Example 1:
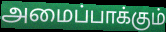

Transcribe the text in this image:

அமைப்பாக்கும்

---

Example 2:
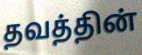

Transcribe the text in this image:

தவத்தின்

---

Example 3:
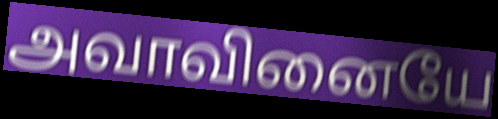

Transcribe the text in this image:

அவாவினையே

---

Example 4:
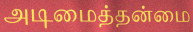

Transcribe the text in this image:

அடிமைத்தன்மை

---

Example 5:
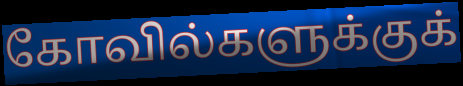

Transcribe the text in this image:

கோவில்களுக்குக்